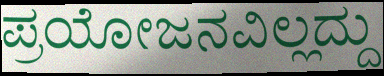
ಪ್ರಯೋಜನವಿಲ್ಲದ್ದು